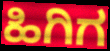
ಹಿಗಿಗ